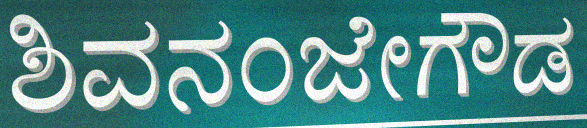
ಶಿವನಂಜೇಗೌಡ